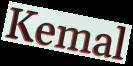
Kemal